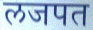
लजपत